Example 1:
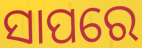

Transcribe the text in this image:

ସାପରେ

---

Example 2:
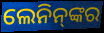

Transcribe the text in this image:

ଲେନିନ୍‌ଙ୍କର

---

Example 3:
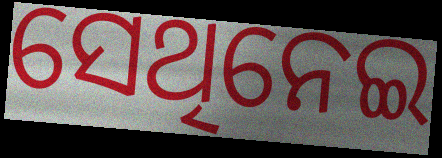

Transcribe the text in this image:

ସେଥିନେଇ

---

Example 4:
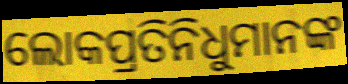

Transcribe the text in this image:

ଲୋକପ୍ରତିନିଧୁମାନଙ୍କ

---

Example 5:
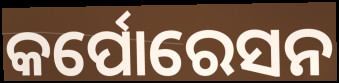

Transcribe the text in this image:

କର୍ପୋରେସନ